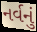
નર્વનું